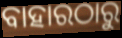
ବାହାରଠାରୁ